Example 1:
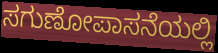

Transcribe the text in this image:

ಸಗುಣೋಪಾಸನೆಯಲ್ಲಿ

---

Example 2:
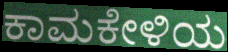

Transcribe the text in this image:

ಕಾಮಕೇಳಿಯ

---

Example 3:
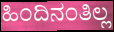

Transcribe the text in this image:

ಹಿಂದಿನಂತಿಲ್ಲ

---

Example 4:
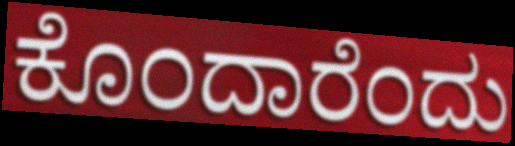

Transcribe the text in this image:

ಕೊಂದಾರೆಂದು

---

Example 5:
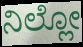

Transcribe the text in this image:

ನಿಲ್ಲೋ